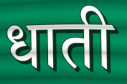
धाती